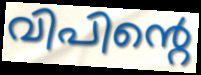
വിപിന്റെ